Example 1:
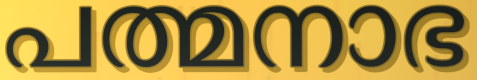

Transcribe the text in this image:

പത്മനാഭ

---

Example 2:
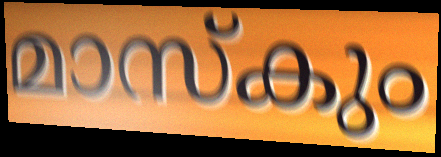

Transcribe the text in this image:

മാസ്കും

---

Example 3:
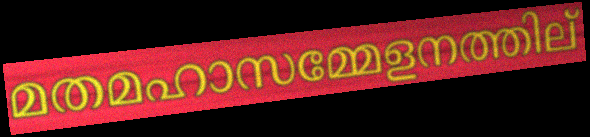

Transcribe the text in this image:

മതമഹാസമ്മേളനത്തില്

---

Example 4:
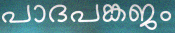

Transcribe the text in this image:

പാദപങ്കജം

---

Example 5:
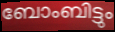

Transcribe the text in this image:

ബോംബിട്ടും